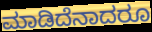
ಮಾಡಿದೆನಾದರೂ